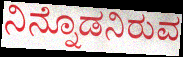
ನಿನ್ನೊಡನಿರುವ